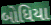
બોધિયા